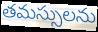
తమస్సులను